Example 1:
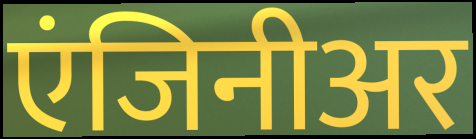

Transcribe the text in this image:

एंजिनीअर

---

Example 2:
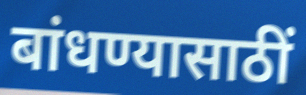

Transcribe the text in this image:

बांधण्यासाठीं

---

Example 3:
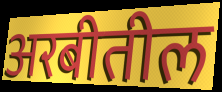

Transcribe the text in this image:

अरबीतील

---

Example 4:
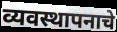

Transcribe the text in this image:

व्यवस्थापनाचे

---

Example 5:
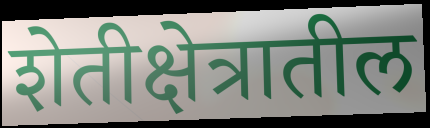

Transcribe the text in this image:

शेतीक्षेत्रातील